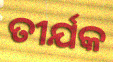
ତୀର୍ଯକ